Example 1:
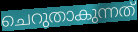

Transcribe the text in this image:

ചെറുതാകുന്നത്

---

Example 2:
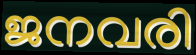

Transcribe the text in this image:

ജനവരി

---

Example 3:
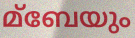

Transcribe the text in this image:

മ്ബേയും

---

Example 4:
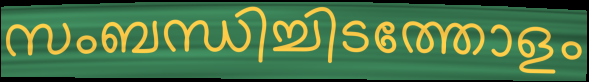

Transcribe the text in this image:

സംബന്ധിച്ചിടത്തോളം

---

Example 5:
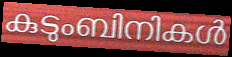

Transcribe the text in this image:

കുടുംബിനികൾ